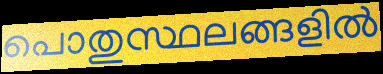
പൊതുസ്ഥലങ്ങളിൽ